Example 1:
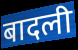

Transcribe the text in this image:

बादली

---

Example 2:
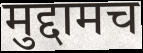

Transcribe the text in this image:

मुद्दामच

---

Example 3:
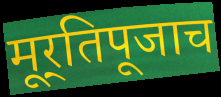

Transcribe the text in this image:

मूर्तिपूजाच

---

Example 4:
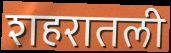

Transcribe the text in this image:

शहरातली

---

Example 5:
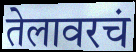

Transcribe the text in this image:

तेलावरचं